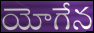
యోగేన